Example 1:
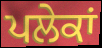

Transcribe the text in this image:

ਪਲੇਕਾਂ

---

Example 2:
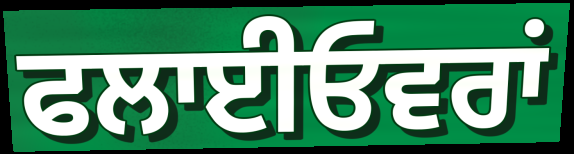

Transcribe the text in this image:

ਫਲਾਈਓਵਰਾਂ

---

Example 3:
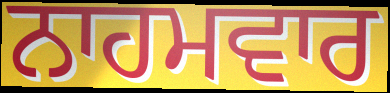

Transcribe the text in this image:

ਨਾਹਮਵਾਰ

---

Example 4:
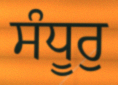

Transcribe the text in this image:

ਸੰਧੂਰੁ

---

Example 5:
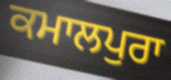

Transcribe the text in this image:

ਕਮਾਲਪੁਰਾ